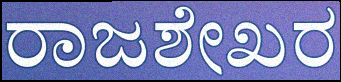
ರಾಜಶೇಖರ